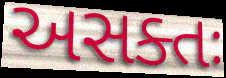
અસક્તઃ